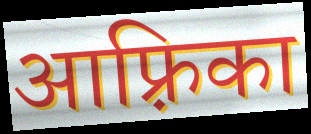
आफ़्रिका